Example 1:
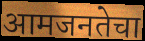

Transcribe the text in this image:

आमजनतेचा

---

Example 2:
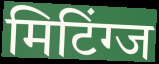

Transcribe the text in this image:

मिटिंग्ज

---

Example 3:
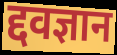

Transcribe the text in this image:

द्दवज्ञान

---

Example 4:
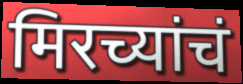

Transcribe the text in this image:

मिरच्यांचं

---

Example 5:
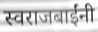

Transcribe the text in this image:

स्वराजबाईंनी